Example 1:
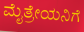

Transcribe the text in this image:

ಮೈತ್ರೇಯನಿಗೆ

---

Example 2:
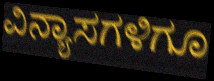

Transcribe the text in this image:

ವಿನ್ಯಾಸಗಳಿಗೂ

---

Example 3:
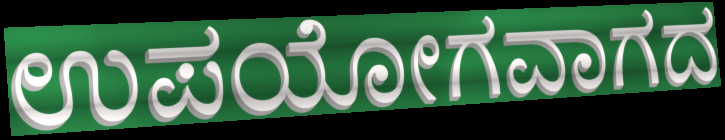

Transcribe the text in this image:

ಉಪಯೋಗವಾಗದ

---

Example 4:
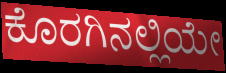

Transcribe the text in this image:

ಕೊರಗಿನಲ್ಲಿಯೇ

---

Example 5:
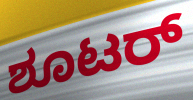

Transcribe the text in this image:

ಶೂಟರ್